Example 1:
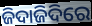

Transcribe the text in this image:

ଜିଦାଜିଦିରେ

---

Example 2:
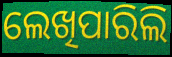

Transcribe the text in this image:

ଲେଖିପାରିଲି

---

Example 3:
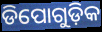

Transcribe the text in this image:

ଡିପୋଗୁଡ଼ିକ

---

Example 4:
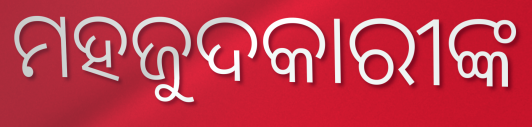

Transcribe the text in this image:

ମହଜୁଦକାରୀଙ୍କ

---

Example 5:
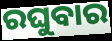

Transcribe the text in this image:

ରଘୁବାର